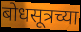
बोधसूत्रच्या